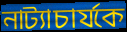
নাট্যাচার্যকে